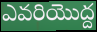
ఎవరియొద్ద